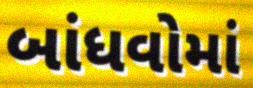
બાંધવોમાં